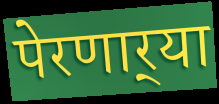
पेरणार्या